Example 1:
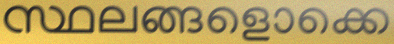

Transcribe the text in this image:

സ്ഥലങ്ങളൊക്കെ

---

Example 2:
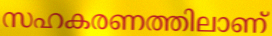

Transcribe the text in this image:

സഹകരണത്തിലാണ്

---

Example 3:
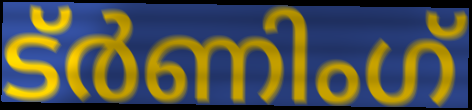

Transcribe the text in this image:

ട്ർണിംഗ്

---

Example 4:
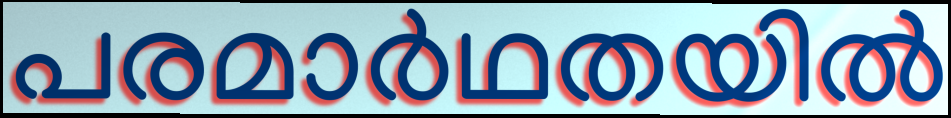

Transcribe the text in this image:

പരമാർഥതയിൽ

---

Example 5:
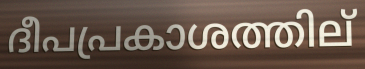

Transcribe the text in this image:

ദീപപ്രകാശത്തില്